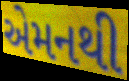
એમનથી